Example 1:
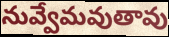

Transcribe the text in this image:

నువ్వేమవుతావు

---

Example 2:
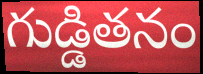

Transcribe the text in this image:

గుడ్డితనం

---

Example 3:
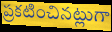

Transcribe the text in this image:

ప్రకటించినట్లుగా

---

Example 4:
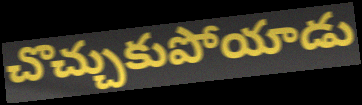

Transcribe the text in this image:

చొచ్చుకుపోయాడు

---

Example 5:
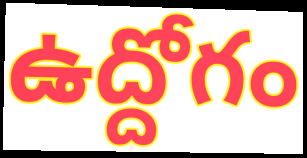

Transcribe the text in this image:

ఉద్దోగం